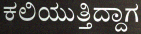
ಕಲಿಯುತ್ತಿದ್ದಾಗ